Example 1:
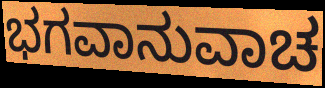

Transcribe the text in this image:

ಭಗವಾನುವಾಚ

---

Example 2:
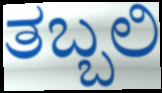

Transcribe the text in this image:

ತಬ್ಬಲಿ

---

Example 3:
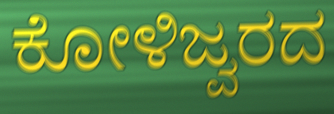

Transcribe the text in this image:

ಕೋಳಿಜ್ವರದ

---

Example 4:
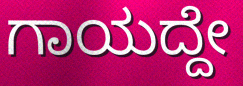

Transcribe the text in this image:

ಗಾಯದ್ದೇ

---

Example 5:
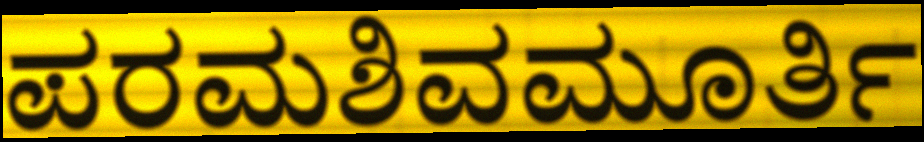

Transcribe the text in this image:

ಪರಮಶಿವಮೂರ್ತಿ